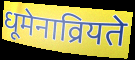
धूमेनाव्रियते